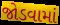
જોડવામાં